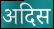
अदिस